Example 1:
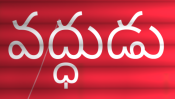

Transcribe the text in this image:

వద్ధుడు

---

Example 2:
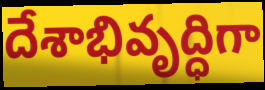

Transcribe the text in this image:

దేశాభివృద్ధిగా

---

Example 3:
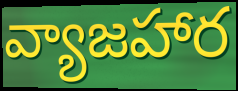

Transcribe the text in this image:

వ్యాజహార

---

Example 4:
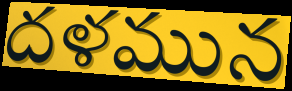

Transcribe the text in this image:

దళమున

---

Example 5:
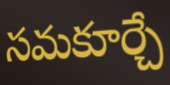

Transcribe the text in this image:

సమకూర్చే